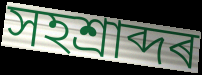
সহশ্ৰাব্দৰ